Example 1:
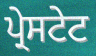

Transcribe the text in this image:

ਪ੍ਰੇਸਟੇਟ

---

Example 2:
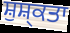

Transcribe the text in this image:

ਸ਼ੁਸ਼੍ਕਤਾ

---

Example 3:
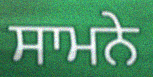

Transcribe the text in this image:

ਸਾਮਨੇ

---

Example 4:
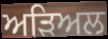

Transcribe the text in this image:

ਅੜਿਅਲ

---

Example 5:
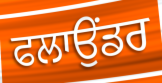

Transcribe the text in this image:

ਫਲਾਉਂਡਰ